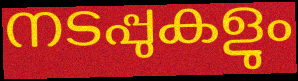
നടപ്പുകളും